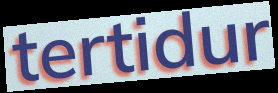
tertidur